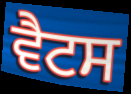
ਵੈਟਸ